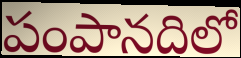
పంపానదిలో